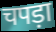
चपड़ा